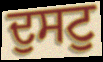
ਦੁਸਟੁ